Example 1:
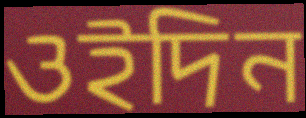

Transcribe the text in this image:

ওইদিন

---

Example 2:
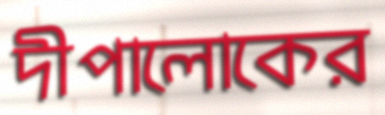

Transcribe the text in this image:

দীপালোকের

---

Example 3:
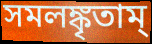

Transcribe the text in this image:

সমলঙ্কৃতাম্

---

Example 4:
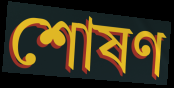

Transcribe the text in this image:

শোষণ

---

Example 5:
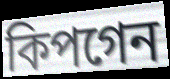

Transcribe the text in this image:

কিপগেন